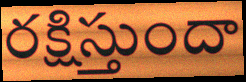
రక్షిస్తుందా